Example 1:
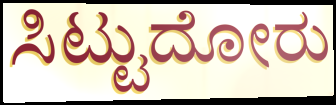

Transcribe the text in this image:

ಸಿಟ್ಟುದೋರು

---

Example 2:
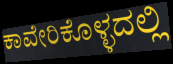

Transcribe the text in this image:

ಕಾವೇರಿಕೊಳ್ಳದಲ್ಲಿ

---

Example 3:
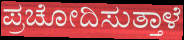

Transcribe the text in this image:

ಪ್ರಚೋದಿಸುತ್ತಾಳೆ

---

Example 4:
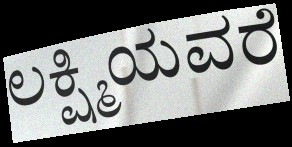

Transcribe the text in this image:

ಲಕ್ಷ್ಮಿಯವರೆ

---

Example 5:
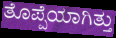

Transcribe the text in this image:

ತೊಪ್ಪೆಯಾಗಿತ್ತು